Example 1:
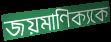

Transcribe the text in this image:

জয়মাণিক্যকে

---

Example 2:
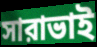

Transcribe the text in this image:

সারাভাই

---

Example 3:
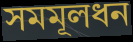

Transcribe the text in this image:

সমমূলধন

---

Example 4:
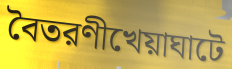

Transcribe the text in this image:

বৈতরণীখেয়াঘাটে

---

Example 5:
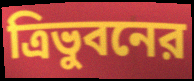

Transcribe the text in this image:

ত্রিভুবনের